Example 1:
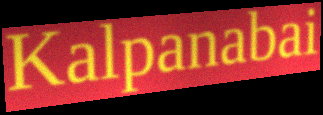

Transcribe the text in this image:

Kalpanabai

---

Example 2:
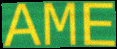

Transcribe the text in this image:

AME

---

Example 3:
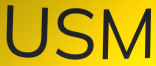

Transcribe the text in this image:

USM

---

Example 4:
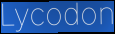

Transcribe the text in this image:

Lycodon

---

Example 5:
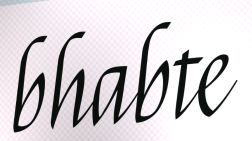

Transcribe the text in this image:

bhabte